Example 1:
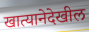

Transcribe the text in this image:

खात्यानेदेखील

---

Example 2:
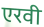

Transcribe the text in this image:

एरवी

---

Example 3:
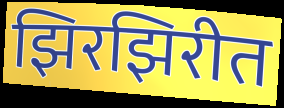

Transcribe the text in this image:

झिरझिरीत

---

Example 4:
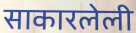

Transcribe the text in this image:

साकारलेली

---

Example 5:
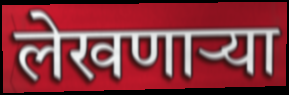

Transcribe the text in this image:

लेखणाऱ्या